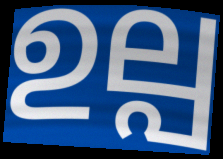
ഉല്പ